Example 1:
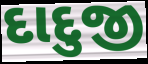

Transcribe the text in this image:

દાદુજી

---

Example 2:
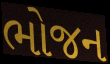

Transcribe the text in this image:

ભોજન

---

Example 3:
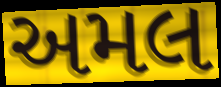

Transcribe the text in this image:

અમલ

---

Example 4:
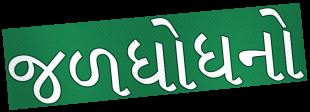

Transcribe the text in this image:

જળધોધનો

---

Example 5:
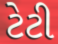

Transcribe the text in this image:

ટેટી